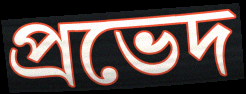
প্রভেদ